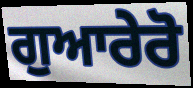
ਗੁਆਰੇਰੋ